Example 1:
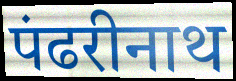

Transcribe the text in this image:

पंढरीनाथ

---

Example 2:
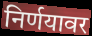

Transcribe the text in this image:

निर्णयावर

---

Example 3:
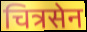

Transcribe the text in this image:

चित्रसेन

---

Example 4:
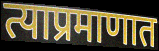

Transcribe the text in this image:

त्याप्रमाणात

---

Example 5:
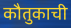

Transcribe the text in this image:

कौतुकाची